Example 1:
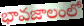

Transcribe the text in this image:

భావజాలంలో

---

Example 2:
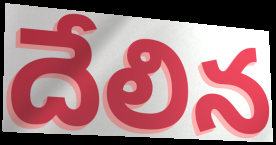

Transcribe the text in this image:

దేలిన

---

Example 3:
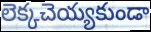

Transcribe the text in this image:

లెక్కచెయ్యకుండా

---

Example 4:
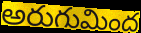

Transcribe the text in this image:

అరుగుమింద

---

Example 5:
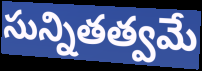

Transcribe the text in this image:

సున్నితత్వమే